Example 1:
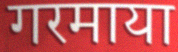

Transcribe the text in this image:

गरमाया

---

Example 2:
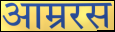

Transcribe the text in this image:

आम्ररस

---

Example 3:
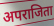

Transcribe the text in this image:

अपराजिता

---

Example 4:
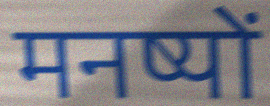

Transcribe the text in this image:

मनष्यों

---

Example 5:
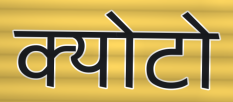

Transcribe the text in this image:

क्‍योटो